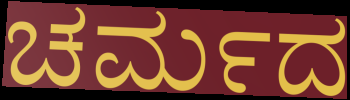
ಚರ್ಮದ